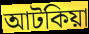
আটকিয়া